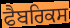
ਫੈਬਰਿਕਸ